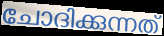
ചോദിക്കുന്നത്